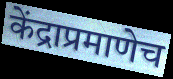
केंद्राप्रमाणेच